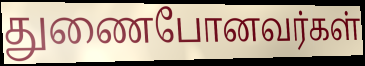
துணைபோனவர்கள்